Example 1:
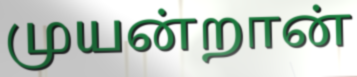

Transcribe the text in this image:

முயன்றான்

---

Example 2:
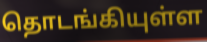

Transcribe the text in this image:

தொடங்கியுள்ள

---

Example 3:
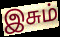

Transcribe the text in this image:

இசும்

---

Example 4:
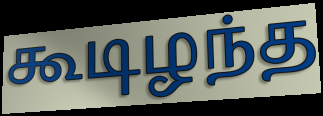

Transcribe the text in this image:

கூடிழந்த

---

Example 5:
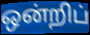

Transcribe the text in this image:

ஒன்றிப்